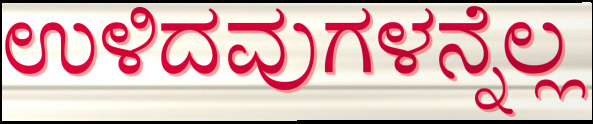
ಉಳಿದವುಗಳನ್ನೆಲ್ಲ